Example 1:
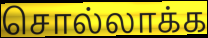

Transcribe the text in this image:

சொல்லாக்க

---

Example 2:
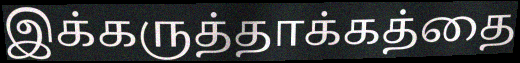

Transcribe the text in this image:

இக்கருத்தாக்கத்தை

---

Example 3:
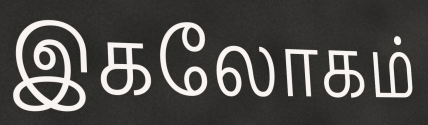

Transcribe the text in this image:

இகலோகம்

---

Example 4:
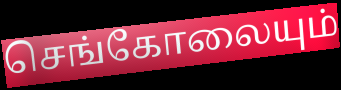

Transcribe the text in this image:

செங்கோலையும்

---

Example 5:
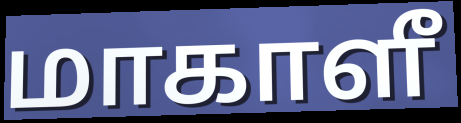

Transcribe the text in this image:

மாகாளீ